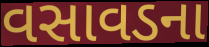
વસાવડના